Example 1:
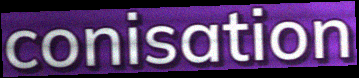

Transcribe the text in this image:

conisation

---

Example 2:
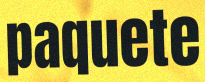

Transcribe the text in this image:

paquete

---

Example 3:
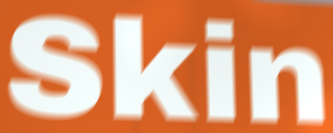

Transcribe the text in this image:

Skin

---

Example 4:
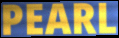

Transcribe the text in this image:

PEARL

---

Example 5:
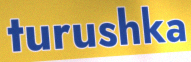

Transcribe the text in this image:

turushka